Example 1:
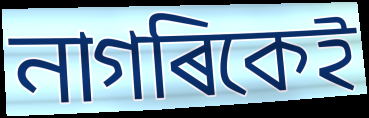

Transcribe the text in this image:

নাগৰিকেই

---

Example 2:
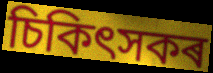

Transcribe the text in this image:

চিকিৎসকৰ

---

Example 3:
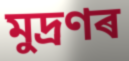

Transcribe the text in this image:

মুদ্ৰণৰ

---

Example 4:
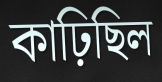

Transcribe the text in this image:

কাঢ়িছিল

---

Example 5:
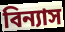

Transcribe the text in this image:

বিন্যাস